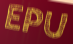
EPU